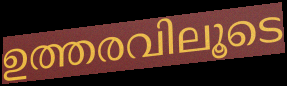
ഉത്തരവിലൂടെ